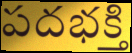
పదభక్తి